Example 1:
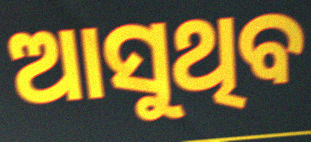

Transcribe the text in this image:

ଆସୁଥିବ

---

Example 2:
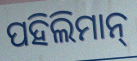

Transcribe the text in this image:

ପହିଲିମାନ୍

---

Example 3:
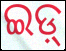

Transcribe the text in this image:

ଇଡ଼୍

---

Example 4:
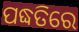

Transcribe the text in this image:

ପଦ୍ଧତିରେ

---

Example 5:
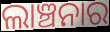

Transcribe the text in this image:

ଲାଞ୍ଚନାର